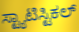
ಸ್ಟ್ಯಾಟಿಸ್ಟಿಕಲ್